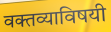
वक्तव्याविषयी